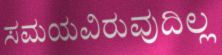
ಸಮಯವಿರುವುದಿಲ್ಲ